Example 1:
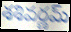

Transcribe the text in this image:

శశివర్ణమ్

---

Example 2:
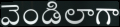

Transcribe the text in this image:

వెండిలాగా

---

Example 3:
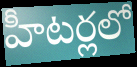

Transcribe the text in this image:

హీటర్లలో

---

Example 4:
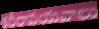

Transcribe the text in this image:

శరీరావయవాలు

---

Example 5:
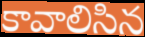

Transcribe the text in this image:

కావాలిసిన